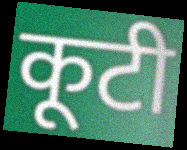
कूटी